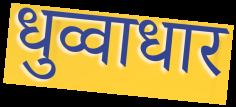
धुव्वाधार